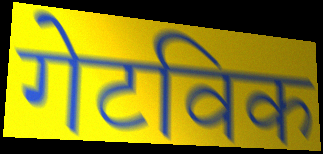
गेटविक